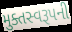
મુક્તસ્વરૂપની